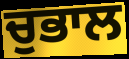
ਚੁਭਾਲ